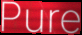
Pure